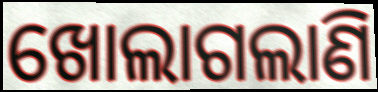
ଖୋଲାଗଲାଣି